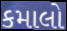
કમાલો